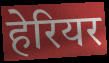
हेरियर